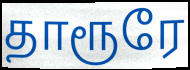
தாரூரே